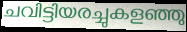
ചവിട്ടിയരച്ചുകളഞ്ഞു